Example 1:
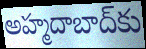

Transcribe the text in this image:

అహ్మదాబాద్‌కు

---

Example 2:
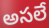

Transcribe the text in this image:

అసలే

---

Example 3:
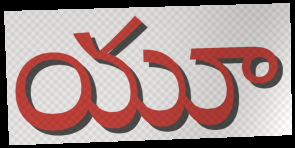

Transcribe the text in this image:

యూ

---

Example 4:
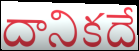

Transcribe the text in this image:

దానికదే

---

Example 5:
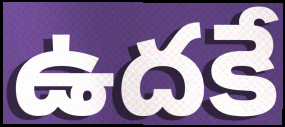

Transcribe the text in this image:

ఉదకే